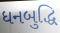
ધનબુદ્ધિ